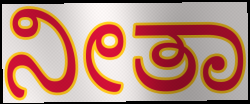
ನೀತಾ